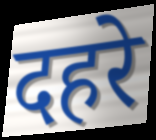
दहरे